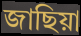
জাছিয়া